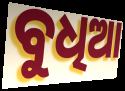
ବୁଧିଆ